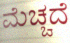
ಮೆಚ್ಚದೆ